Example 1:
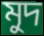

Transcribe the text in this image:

মুদ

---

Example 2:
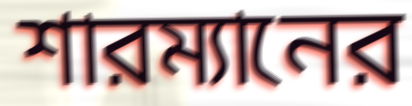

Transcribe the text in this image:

শারম্যানের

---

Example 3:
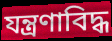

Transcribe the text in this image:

যন্ত্রণাবিদ্ধ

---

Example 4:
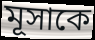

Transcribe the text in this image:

মূসাকে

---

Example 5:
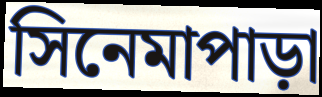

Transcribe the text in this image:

সিনেমাপাড়া